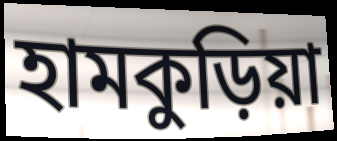
হামকুড়িয়া